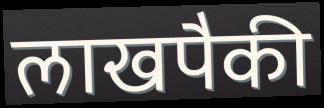
लाखपैकी